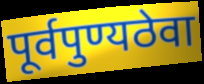
पूर्वपुण्यठेवा